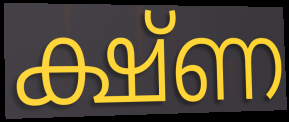
ക്ഷ്ണ